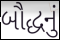
બૌદ્ધનું